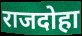
राजदोहा